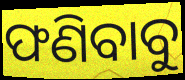
ଫଣିବାବୁ